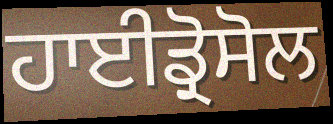
ਹਾਈਡ੍ਰੋਸੋਲ